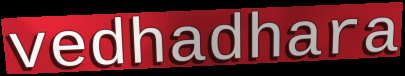
vedhadhara